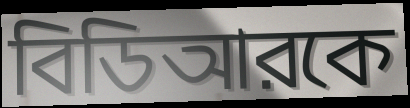
বিডিআরকে